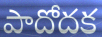
పాదోదక